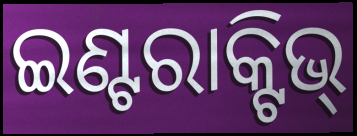
ଇଣ୍ଟରାକ୍ଟିଭ୍